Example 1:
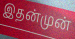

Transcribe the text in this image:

இதன்முன்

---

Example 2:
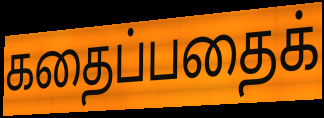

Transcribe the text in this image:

கதைப்பதைக்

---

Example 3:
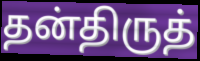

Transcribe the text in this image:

தன்திருத்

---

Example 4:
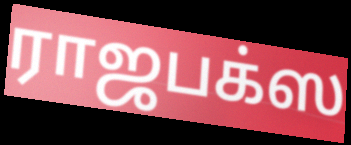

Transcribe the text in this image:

ராஜபக்ஸ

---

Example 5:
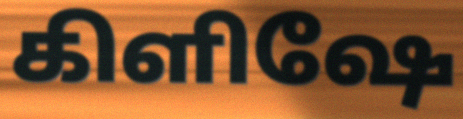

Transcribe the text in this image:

கிளிஷே